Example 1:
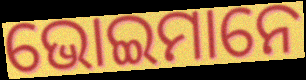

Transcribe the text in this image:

ଭୋଇମାନେ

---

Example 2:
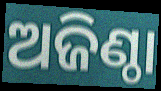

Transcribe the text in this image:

ଅଜିଣ୍ଠା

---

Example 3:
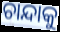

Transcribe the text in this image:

ଚାନ୍ଦାକୁ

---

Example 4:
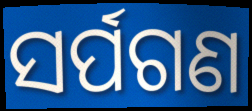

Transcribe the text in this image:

ସର୍ପଗଣ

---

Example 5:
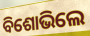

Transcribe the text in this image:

ବିଶୋଭିଲେ